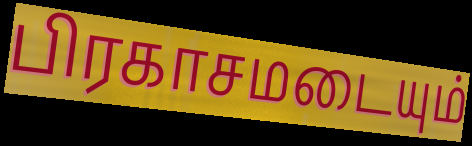
பிரகாசமடையும்